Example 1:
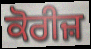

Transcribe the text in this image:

ਕੋਰੀਜ਼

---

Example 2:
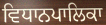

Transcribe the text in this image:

ਵਿਧਾਨਪਾਲਿਕਾ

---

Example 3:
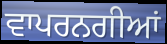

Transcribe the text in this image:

ਵਾਪਰਨਗੀਆਂ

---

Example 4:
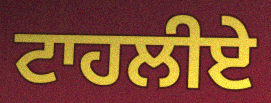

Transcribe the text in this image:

ਟਾਹਲੀਏ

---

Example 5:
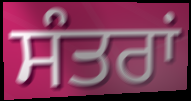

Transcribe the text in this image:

ਸੰਤਰਾਂ